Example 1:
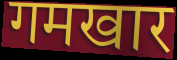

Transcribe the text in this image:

गमखार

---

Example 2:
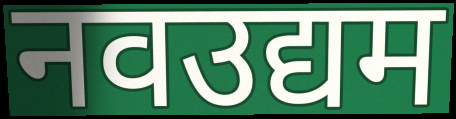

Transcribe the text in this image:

नवउद्यम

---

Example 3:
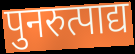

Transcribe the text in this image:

पुनरुत्पाद्य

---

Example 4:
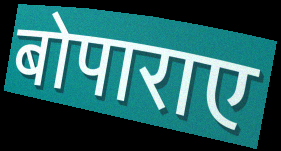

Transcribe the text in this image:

बोपाराए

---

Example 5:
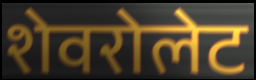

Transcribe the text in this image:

शेवरोलेट